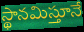
స్థానమిస్తూనే